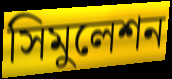
সিমুলেশন